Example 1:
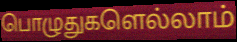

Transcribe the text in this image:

பொழுதுகளெல்லாம்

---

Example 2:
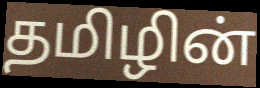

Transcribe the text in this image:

தமிழின்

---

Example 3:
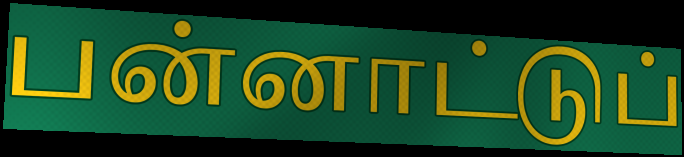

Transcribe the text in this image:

பன்னாட்டுப்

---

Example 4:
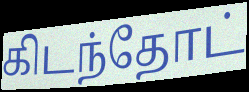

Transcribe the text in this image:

கிடந்தோட்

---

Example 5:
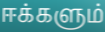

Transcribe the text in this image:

ஈக்களும்